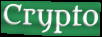
Crypto